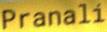
Pranali